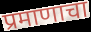
प्रमाणाचा